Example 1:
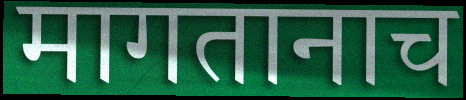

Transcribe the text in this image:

मागतानाच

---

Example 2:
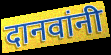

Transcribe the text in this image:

दानवांनी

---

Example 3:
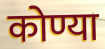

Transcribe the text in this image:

कोण्या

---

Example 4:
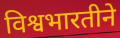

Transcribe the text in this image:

विश्वभारतीने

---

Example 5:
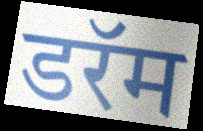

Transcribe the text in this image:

डरॅम